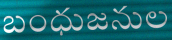
బంధుజనుల